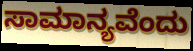
ಸಾಮಾನ್ಯವೆಂದು